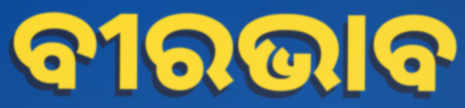
ବୀରଭାବ